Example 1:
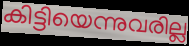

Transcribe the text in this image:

കിട്ടിയെന്നുവരില്ല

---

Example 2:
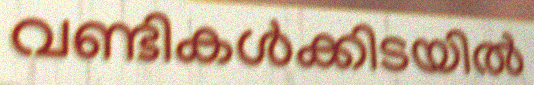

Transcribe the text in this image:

വണ്ടികൾക്കിടയിൽ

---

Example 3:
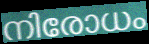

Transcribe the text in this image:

നിരോധം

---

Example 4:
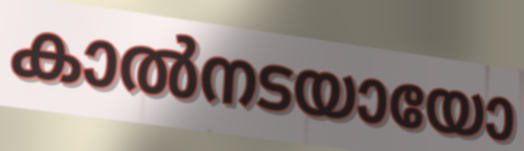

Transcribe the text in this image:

കാൽനടയായോ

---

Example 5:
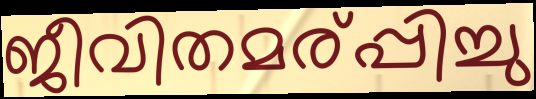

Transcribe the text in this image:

ജീവിതമര്പ്പിച്ചു